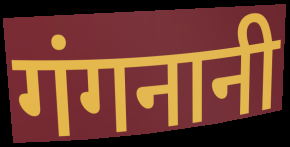
गंगनानी